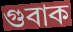
গুবাক